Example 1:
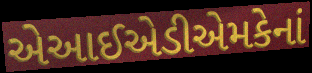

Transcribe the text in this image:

એઆઈએડીએમકેનાં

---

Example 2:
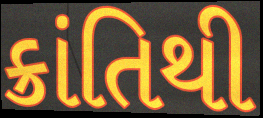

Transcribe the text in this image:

ક્રાંતિથી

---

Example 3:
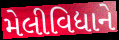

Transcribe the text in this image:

મેલીવિદ્યાને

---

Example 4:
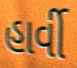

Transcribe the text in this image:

હાર્વી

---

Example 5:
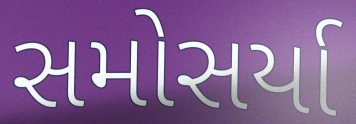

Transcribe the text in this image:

સમોસર્યા